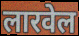
लारवेल